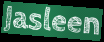
Jasleen